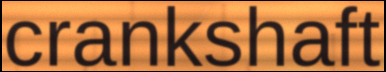
crankshaft